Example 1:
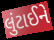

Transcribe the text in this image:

લુંટાઈને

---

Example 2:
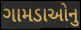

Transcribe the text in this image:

ગામડાઓનુ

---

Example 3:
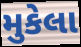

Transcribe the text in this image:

મુકેલા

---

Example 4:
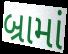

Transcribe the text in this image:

બ્રામાં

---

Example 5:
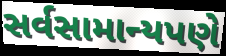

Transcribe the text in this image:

સર્વસામાન્યપણે